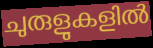
ചുരുളുകളിൽ